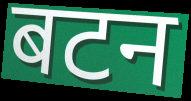
बटन